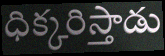
ధిక్కరిస్తాడు